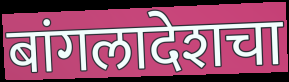
बांगलादेशचा